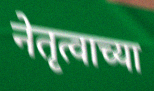
नेतृत्वाच्या